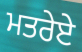
ਮਤਰੇਏ